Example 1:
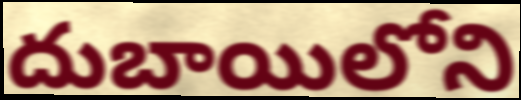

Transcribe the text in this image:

దుబాయిలోని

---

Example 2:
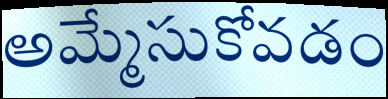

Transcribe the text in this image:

అమ్మేసుకోవడం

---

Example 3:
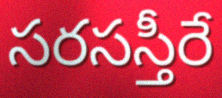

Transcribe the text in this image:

సరసస్తీరే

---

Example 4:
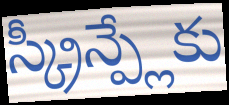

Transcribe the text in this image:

స్క్రీన్ప్లేకు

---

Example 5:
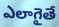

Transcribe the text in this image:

ఎలాగైతే